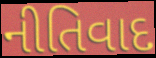
નીતિવાદ